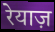
रेयाज़